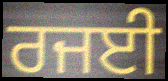
ਰਜਈ